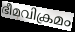
ഭീമവിക്രമം